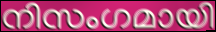
നിസംഗമായി